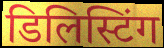
डिलिस्टिंग